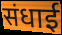
संधाई